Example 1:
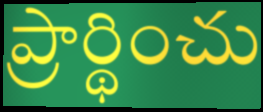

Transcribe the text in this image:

ప్రార్థించు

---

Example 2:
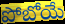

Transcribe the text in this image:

పోబోయే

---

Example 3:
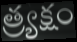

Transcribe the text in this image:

త్ర్యక్షం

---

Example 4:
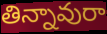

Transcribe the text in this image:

తిన్నావురా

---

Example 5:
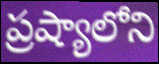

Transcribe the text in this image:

ప్రష్యాలోని